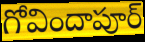
గోవిందాపూర్